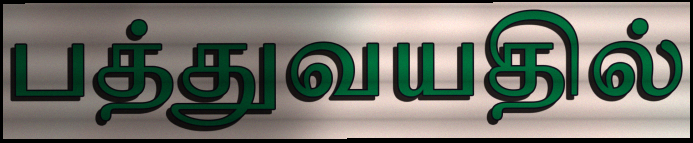
பத்துவயதில்